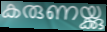
കരുണയ്ക്കു